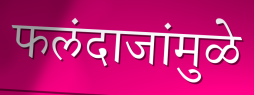
फलंदाजांमुळे